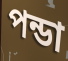
পন্ডা